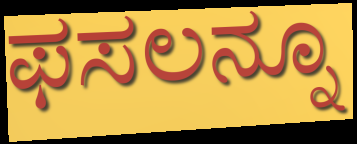
ಫಸಲನ್ನೂ